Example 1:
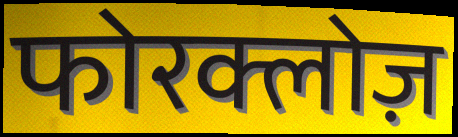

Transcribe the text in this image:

फोरक्लोज़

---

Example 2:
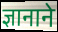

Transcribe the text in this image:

ज्ञानाने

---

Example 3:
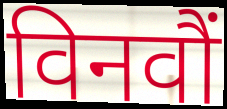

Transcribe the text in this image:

विनवौं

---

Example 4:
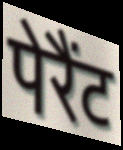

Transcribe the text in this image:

पेरैंट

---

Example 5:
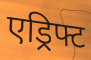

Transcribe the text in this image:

एड्रिफ्ट